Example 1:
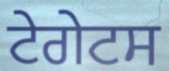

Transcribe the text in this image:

ਟੇਗੇਟਸ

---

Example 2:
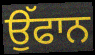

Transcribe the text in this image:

ਉੱਫਾਨ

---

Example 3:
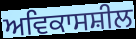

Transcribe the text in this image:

ਅਵਿਕਾਸਸ਼ੀਲ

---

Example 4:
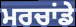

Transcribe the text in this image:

ਮਰਚਾਂਡੇ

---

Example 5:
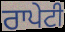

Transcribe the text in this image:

ਰਾਪੇਟੀ